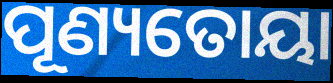
ପୂଣ୍ୟତୋୟା